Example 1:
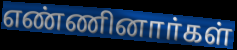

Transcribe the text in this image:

எண்ணினார்கள்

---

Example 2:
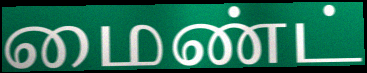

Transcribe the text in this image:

மைண்ட்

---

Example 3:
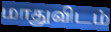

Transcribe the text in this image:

மாதுவிடம்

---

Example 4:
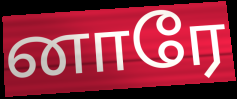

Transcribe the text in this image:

னாரே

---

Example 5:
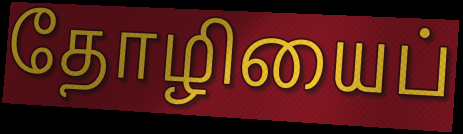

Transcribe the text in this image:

தோழியைப்